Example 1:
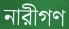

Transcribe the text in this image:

নারীগণ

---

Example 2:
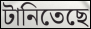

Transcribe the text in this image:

টানিতেছে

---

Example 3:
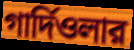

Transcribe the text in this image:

গার্দিওলার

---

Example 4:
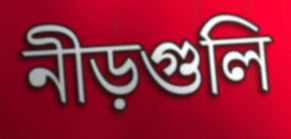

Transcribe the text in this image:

নীড়গুলি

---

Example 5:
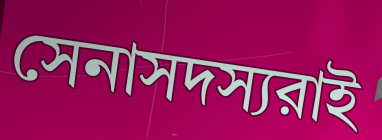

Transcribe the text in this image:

সেনাসদস্যরাই